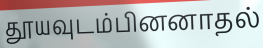
தூயவுடம்பினனாதல்